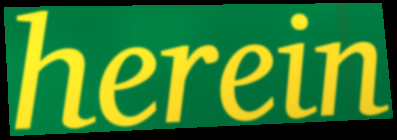
herein